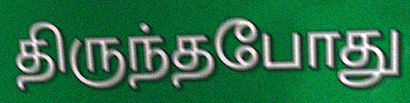
திருந்தபோது